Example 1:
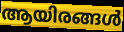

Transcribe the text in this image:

ആയിരങ്ങൾ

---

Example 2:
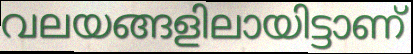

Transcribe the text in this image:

വലയങ്ങളിലായിട്ടാണ്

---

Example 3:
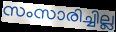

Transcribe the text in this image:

സംസാരിച്ചില്ല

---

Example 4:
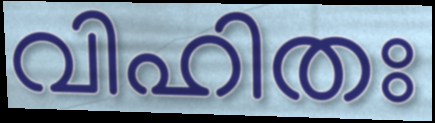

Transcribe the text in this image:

വിഹിതഃ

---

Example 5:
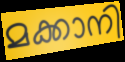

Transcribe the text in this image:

മക്കാനി